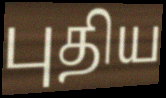
புதிய